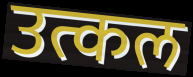
उत्कल